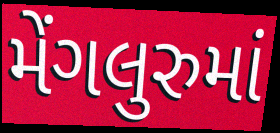
મેંગલુરુમાં